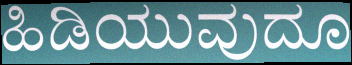
ಹಿಡಿಯುವುದೂ